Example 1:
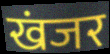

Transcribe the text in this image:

खंजर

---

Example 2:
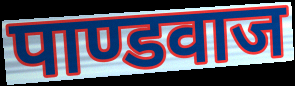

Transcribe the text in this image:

पाण्डवाज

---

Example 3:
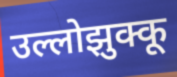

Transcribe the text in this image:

उल्लोझुक्कू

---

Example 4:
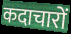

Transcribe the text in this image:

कदाचारों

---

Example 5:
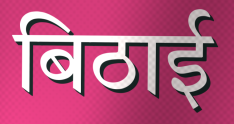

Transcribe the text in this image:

बिठाई